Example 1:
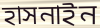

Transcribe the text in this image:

হাসনাইন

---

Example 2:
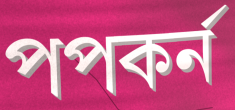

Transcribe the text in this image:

পপকর্ন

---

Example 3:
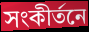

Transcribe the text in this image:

সংকীর্তনে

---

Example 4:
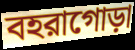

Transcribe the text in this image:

বহরাগোড়া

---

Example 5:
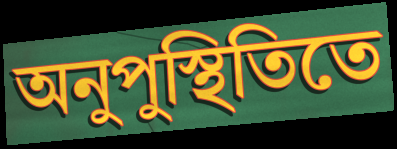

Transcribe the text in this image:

অনুপুস্থিতিতে